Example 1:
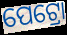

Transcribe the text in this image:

ପେଟ୍ରୋ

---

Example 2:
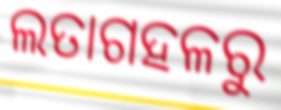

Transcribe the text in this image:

ଲତାଗହଳରୁ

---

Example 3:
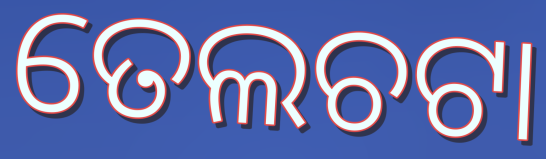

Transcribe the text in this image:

ତେଲଚଟା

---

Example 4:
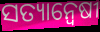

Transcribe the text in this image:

ସତ୍ୟାନ୍ଵେଷୀ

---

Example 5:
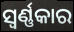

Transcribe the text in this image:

ସ୍ୱର୍ଣ୍ଣକାର